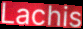
Lachis